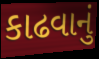
કાઢવાનું